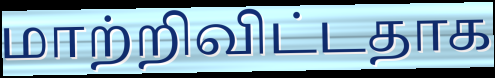
மாற்றிவிட்டதாக